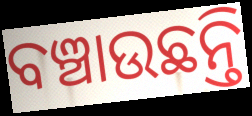
ବଞ୍ଚାଉଛନ୍ତି